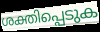
ശക്തിപ്പെടുക